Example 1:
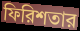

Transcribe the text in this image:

ফিরিশতার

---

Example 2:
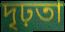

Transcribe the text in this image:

দৃঢ়তা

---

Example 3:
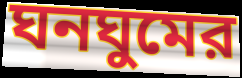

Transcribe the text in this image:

ঘনঘুমের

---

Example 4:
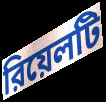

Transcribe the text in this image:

রিয়েলটি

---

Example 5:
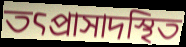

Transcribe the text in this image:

তৎপ্রাসাদস্থিত